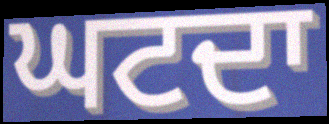
ਘਟਦਾ